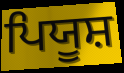
ਪਿਯੂਸ਼